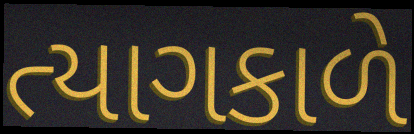
ત્યાગકાળે